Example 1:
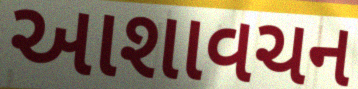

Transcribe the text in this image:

આશાવચન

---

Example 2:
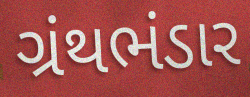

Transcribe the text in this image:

ગ્રંથભંડાર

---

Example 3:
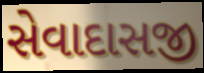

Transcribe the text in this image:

સેવાદાસજી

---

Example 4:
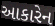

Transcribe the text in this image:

આકારેન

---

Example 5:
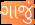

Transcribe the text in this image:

ગાજું